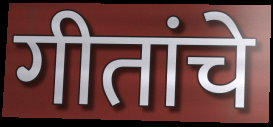
गीतांचे